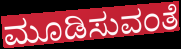
ಮೂಡಿಸುವಂತೆ